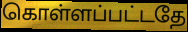
கொள்ளப்பட்டதே